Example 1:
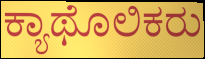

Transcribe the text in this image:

ಕ್ಯಾಥೊಲಿಕರು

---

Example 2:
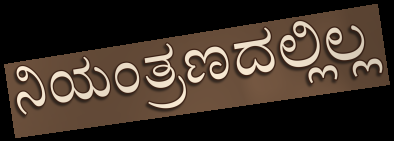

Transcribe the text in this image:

ನಿಯಂತ್ರಣದಲ್ಲಿಲ್ಲ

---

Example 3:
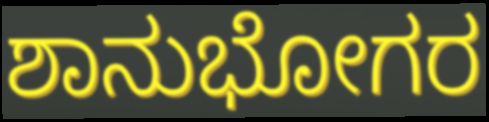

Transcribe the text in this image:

ಶಾನುಭೋಗರ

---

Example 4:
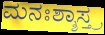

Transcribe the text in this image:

ಮನಃಶ್ಶಾಸ್ತ್ರ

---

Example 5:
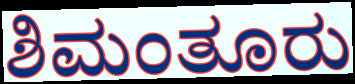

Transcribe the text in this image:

ಶಿಮಂತೂರು